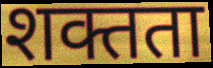
शक्तता